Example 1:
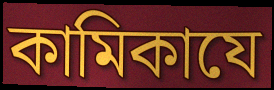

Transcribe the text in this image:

কামিকাযে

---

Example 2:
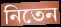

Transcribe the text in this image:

নিতেন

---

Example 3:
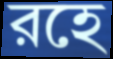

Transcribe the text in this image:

রহে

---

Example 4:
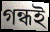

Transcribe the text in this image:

গন্ধই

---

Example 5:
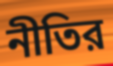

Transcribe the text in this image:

নীতির